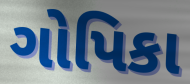
ગોપિકા